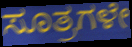
ಸೂತ್ರಗಳೇ